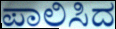
ಪಾಲಿಸಿದ